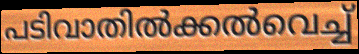
പടിവാതിൽക്കൽവെച്ച്